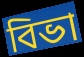
বিভা